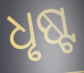
ଧୃଷ୍ଟ